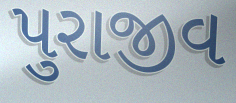
પુરાજીવ